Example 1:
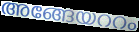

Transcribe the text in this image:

അങ്ങേയററം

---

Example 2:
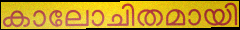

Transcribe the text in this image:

കാലോചിതമായി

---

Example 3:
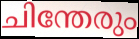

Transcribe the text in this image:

ചിന്തേരും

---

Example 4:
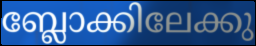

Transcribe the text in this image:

ബ്ലോക്കിലേക്കു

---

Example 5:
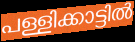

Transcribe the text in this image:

പള്ളിക്കാട്ടിൽ